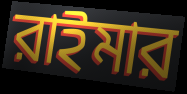
রাইমার